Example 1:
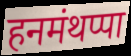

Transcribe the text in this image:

हनमंथप्पा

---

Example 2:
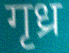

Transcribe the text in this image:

गृध्र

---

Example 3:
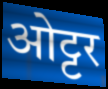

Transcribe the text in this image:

ओट्टर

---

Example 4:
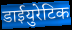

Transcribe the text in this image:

डाईयुरेटिक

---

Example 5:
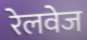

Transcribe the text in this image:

रेलवेज